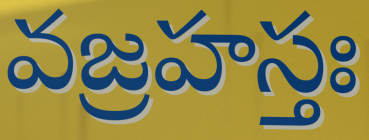
వజ్రహస్తః